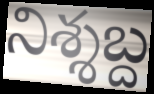
నిశ్శబ్ద